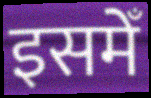
इसमेँ